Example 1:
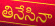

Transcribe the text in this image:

తినేసినా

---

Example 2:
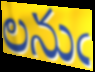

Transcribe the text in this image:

లనుఁ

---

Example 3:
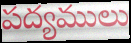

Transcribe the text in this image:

పద్యములు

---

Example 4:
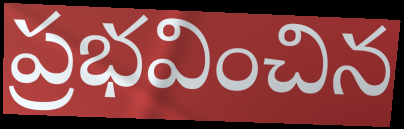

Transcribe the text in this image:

ప్రభవించిన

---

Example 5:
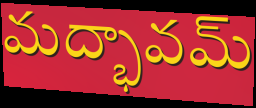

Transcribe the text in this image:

మద్భావమ్